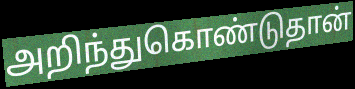
அறிந்துகொண்டுதான்